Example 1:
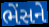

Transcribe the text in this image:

ભેંસને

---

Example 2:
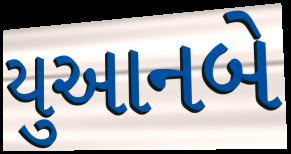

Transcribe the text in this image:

યુઆનબે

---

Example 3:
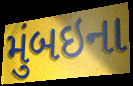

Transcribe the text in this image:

મુંબઇના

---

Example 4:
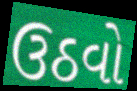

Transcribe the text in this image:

ઉઠવો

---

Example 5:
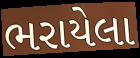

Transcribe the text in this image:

ભરાયેલા